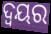
ଦ୍ବୟର